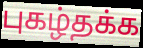
புகழ்தக்க